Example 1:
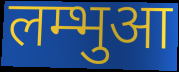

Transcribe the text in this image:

लम्भुआ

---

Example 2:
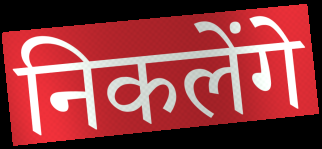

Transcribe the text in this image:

निकलेंगे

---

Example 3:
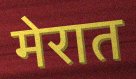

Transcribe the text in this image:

मेरात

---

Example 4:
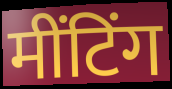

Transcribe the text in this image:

मींटिंग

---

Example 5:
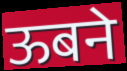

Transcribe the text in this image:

ऊबने